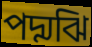
পদ্মঝি